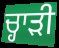
ਚ੍ਹਾੜੀ